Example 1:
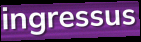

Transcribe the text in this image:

ingressus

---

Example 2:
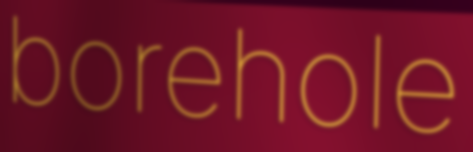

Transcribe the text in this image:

borehole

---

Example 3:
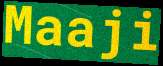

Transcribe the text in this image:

Maaji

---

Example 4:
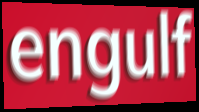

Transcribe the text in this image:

engulf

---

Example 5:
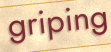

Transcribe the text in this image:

griping